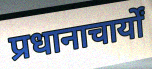
प्रधानाचार्यों